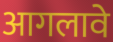
आगलावे